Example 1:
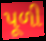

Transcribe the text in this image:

પૂળી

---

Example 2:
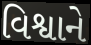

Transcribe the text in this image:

વિશ્વાને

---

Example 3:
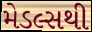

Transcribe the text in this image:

મેડલ્સથી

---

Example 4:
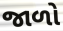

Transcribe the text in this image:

જાળો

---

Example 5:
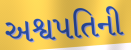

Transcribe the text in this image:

અશ્વપતિની